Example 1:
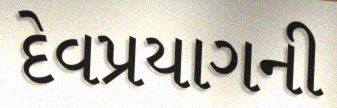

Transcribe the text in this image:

દેવપ્રયાગની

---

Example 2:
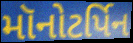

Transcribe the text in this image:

મૉનોટર્પિન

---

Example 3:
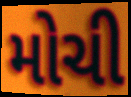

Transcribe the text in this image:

મોચી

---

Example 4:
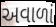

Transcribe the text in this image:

અવાળાં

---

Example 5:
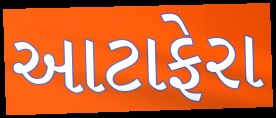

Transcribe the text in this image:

આટાફેરા